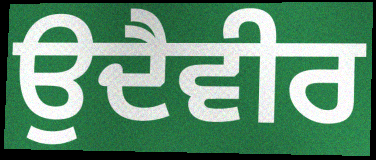
ਉਦੈਵੀਰ